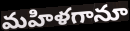
మహిళగానూ